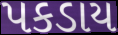
પકડાય